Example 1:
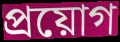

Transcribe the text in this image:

প্রয়োগ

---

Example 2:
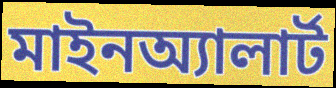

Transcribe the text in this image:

মাইনঅ্যালার্ট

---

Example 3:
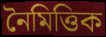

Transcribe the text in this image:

নৈমিত্তিক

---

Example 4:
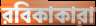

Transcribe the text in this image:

রবিকাকারা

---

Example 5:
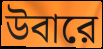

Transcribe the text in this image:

উবারে